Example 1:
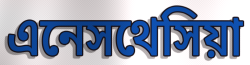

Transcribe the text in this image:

এনেসথেসিয়া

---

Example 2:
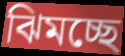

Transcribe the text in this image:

ঝিমচ্ছে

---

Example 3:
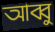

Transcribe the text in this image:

আব্বু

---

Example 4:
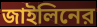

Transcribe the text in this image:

জাইলিনের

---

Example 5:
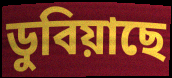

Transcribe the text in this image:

ডুবিয়াছে